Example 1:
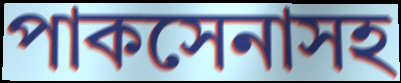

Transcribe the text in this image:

পাকসেনাসহ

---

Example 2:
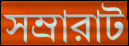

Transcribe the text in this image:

সম্রারাট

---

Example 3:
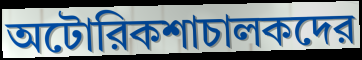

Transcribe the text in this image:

অটোরিকশাচালকদের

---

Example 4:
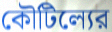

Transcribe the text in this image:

কৌটিল্যের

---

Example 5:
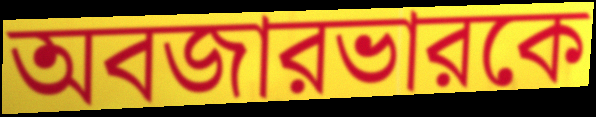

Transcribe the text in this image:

অবজারভারকে